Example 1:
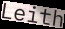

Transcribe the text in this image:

Leith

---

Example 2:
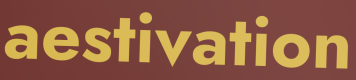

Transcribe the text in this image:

aestivation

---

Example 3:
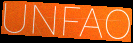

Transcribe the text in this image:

UNFAO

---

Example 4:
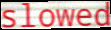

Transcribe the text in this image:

slowed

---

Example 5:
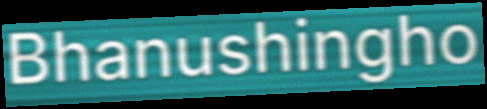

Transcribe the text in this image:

Bhanushingho